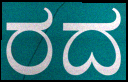
ರದ